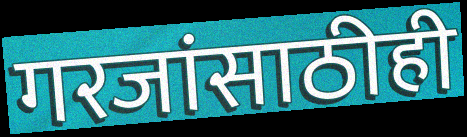
गरजांसाठीही